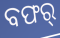
ବଫର୍